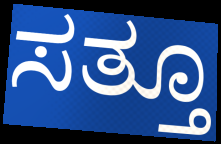
ಸತ್ತೂ